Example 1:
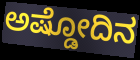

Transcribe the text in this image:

ಅಷ್ಡೋದಿನ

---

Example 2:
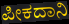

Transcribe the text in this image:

ಪೀಕದಾನಿ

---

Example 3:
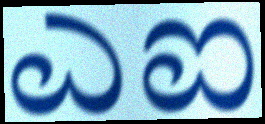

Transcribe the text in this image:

ಎಐ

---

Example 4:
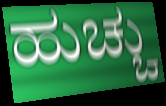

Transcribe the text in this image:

ಹುಚ್ಚು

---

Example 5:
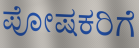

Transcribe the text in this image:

ಪೋಷಕರಿಗೆ